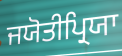
ਜਯੋਤੀਪ੍ਰਿਯਾ